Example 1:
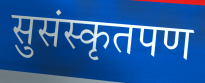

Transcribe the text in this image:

सुसंस्कृतपण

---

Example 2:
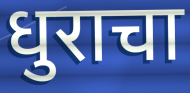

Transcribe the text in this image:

धुराचा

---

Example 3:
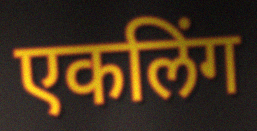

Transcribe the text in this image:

एकलिंग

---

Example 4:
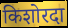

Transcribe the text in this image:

किशोरदा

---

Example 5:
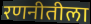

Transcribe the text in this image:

रणनीतीला